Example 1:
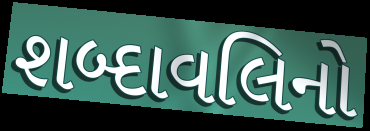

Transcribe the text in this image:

શબ્દાવલિનો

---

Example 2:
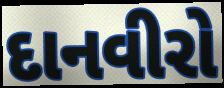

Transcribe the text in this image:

દાનવીરો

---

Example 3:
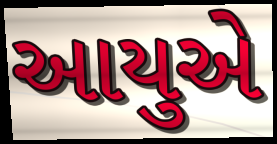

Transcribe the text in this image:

આયુએ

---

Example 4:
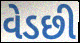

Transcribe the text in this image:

વેડછી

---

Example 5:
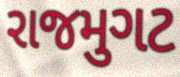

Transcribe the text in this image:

રાજમુગટ